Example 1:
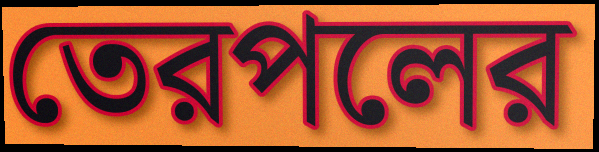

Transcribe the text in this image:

তেরপলের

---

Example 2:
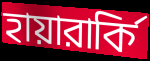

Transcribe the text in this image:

হায়ারার্কি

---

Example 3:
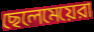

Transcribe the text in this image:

ছেলেমেয়েরা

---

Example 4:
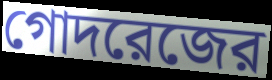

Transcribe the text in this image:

গোদরেজের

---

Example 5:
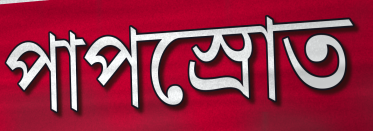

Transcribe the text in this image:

পাপস্রোত